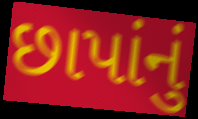
છાપાંનું